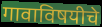
गावाविषयीचे